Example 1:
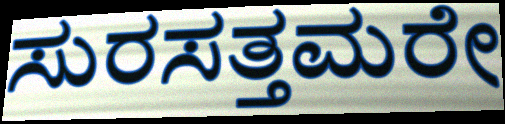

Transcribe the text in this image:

ಸುರಸತ್ತಮರೇ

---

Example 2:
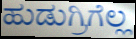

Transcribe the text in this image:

ಹುಡುಗ್ರಿಗೆಲ್ಲ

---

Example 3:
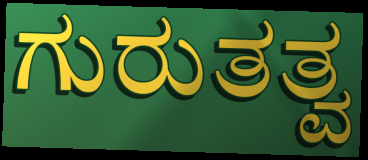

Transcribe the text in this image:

ಗುರುತತ್ವ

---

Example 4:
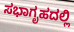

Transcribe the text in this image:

ಸಭಾಗೃಹದಲ್ಲಿ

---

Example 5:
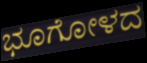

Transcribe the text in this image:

ಭೂಗೋಳದ